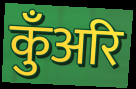
कुँअरि